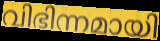
വിഭിന്നമായി